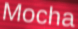
Mocha